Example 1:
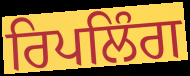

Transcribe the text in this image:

ਰਿਪਲਿੰਗ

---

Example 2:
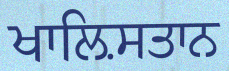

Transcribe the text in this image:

ਖਾਲ਼ਿਸਤਾਨ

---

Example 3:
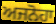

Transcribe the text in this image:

ਅਜਨੋਹਾ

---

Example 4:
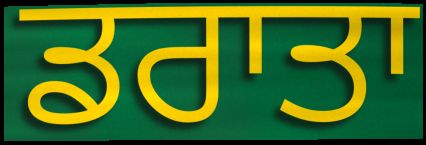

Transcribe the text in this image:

ਡਰਾਤਾ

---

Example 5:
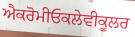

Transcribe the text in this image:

ਐਕਰੋਮੀਓਕਲੇਵੀਕੂਲਰ